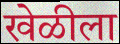
खेळीला